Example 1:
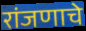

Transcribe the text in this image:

रांजणाचे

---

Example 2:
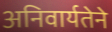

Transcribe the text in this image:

अनिवार्यतेने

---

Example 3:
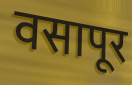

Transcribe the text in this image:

वसापूर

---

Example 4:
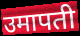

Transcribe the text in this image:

उमापती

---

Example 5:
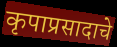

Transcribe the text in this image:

कृपाप्रसादाचे